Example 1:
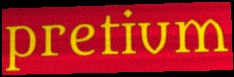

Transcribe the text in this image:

pretium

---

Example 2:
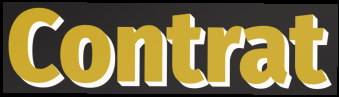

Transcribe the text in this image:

Contrat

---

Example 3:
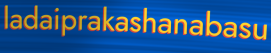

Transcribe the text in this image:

ladaiprakashanabasu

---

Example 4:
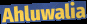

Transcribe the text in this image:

Ahluwalia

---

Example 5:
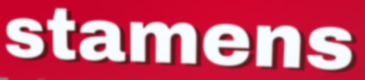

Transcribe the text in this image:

stamens